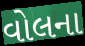
વોલના